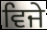
ਵਿਜੇ